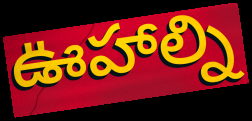
ఊహాల్ని